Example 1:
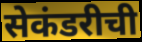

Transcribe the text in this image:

सेकंडरीची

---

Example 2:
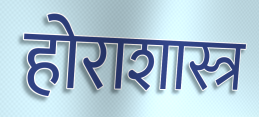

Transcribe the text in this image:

होराशास्त्र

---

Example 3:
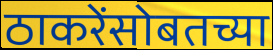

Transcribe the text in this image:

ठाकरेंसोबतच्या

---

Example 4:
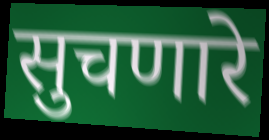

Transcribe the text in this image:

सुचणारे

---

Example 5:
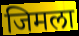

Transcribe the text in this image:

जिमला